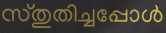
സ്തുതിച്ചപ്പോൾ